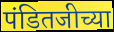
पंडितजीच्या